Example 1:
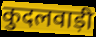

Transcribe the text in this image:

कुदलवाड़ी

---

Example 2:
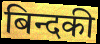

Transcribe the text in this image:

बिन्दकी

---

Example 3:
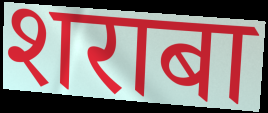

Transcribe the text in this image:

शराबा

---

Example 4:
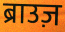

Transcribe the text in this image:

ब्राउज़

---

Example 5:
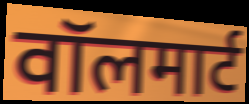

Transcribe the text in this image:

वॉलमार्ट